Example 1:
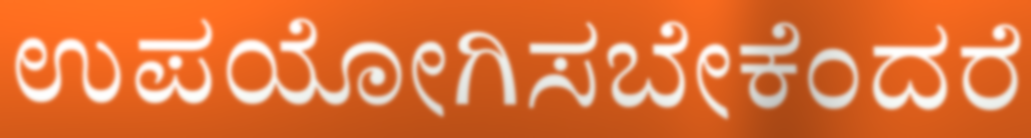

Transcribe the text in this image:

ಉಪಯೋಗಿಸಬೇಕೆಂದರೆ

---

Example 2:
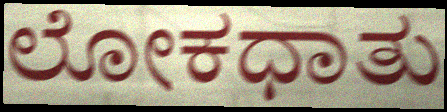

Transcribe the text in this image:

ಲೋಕಧಾತು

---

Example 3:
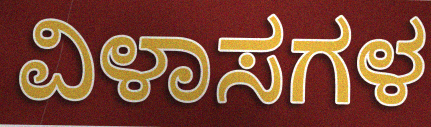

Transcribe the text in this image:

ವಿಳಾಸಗಳ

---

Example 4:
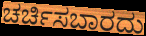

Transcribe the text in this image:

ಚರ್ಚಿಸಬಾರದು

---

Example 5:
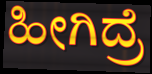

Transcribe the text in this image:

ಹೀಗಿದ್ರೆ